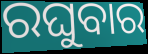
ରଘୁବାର